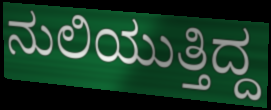
ನುಲಿಯುತ್ತಿದ್ದ